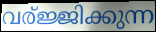
വര്ജ്ജിക്കുന്ന